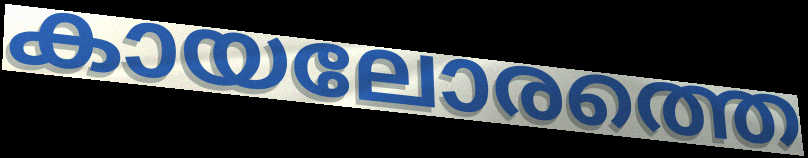
കായലോരത്തെ